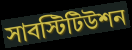
সাবস্টিটিউশন